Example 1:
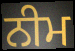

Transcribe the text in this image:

ਨੀਮ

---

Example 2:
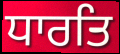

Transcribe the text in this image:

ਧਾਰਤਿ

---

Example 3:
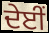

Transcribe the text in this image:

ਦੇਈਂ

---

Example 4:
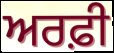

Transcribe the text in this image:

ਅਰਫ਼ੀ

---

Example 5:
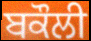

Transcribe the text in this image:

ਬਕੌਲੀ